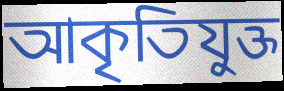
আকৃতিযুক্ত